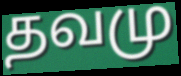
தவமு